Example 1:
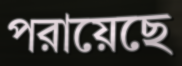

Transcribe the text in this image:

পরায়েছে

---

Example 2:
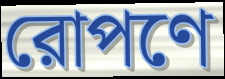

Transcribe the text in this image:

রোপণে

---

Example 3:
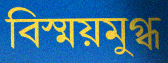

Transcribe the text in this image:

বিস্ময়মুগ্ধ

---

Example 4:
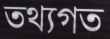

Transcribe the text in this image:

তথ্যগত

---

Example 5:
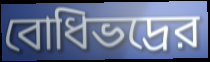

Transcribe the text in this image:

বোধিভদ্রের